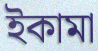
ইকামা